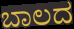
ಬಾಲದ